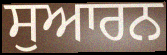
ਸੁਆਰਨ